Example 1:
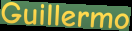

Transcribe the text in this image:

Guillermo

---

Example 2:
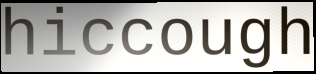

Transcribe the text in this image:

hiccough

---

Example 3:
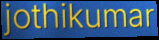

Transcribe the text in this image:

jothikumar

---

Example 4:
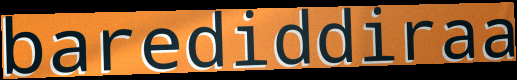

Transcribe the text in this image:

barediddiraa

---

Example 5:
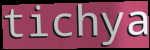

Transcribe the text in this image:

tichya